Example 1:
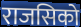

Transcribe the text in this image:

राजसिको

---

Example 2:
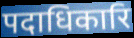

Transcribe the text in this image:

पदाधिकारि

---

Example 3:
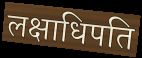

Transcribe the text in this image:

लक्षाधिपति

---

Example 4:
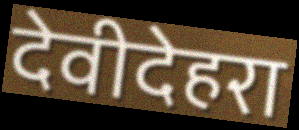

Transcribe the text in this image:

देवीदेहरा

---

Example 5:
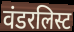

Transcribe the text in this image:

वंडरलिस्ट